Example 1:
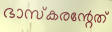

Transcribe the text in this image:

ഭാസ്കരന്റേത്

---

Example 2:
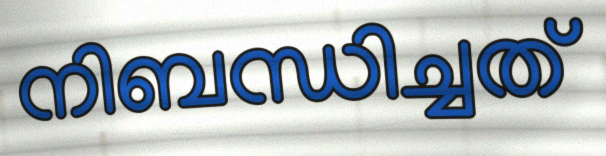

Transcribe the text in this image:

നിബന്ധിച്ചത്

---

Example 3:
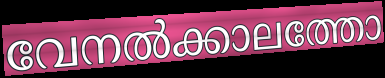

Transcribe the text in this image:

വേനൽക്കാലത്തോ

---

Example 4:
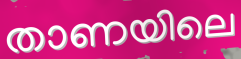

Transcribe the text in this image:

താണയിലെ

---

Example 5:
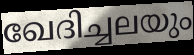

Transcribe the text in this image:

ഖേദിച്ചലയും